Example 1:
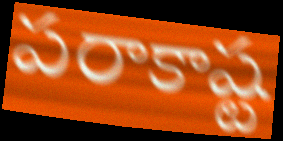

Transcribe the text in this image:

పరాకాష్ట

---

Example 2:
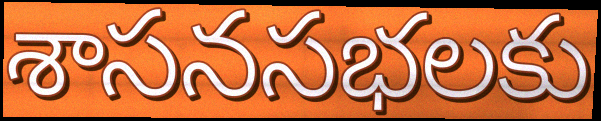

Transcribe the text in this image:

శాసనసభలకు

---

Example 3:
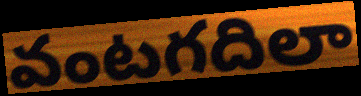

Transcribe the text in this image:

వంటగదిలా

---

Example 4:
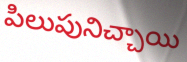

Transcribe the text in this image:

పిలుపునిచ్చాయి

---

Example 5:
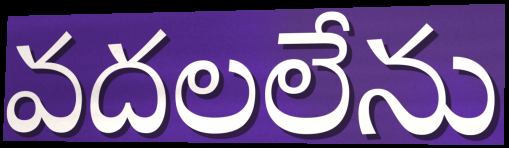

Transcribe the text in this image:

వదలలేను